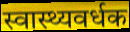
स्वास्थ्यवर्धक